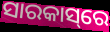
ସାରକାସ୍‌ରେ